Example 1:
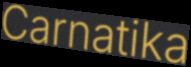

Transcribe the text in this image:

Carnatika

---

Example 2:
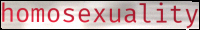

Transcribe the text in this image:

homosexuality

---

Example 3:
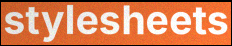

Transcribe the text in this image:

stylesheets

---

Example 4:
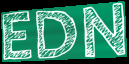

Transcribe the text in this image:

EDN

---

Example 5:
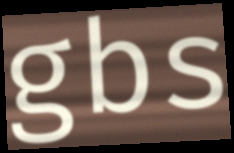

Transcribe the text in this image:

gbs